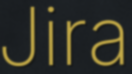
Jira